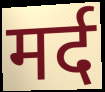
मर्द